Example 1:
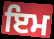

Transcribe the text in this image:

ਇਮ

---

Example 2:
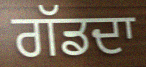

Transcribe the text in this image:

ਗੱਡਦਾ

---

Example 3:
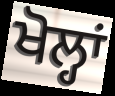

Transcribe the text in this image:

ਖੋਲ੍ਹਾਂ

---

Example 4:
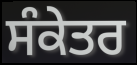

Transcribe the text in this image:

ਸੰਕੇਤਰ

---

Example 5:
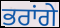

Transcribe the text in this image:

ਭਰਾਂਗੇ